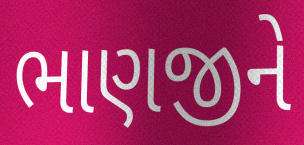
ભાણજીને